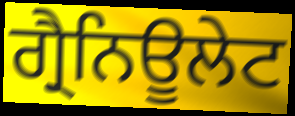
ਗ੍ਰੈਨਿਊਲੇਟ